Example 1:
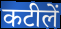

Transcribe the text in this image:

कटीलें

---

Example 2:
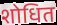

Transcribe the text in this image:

शोधित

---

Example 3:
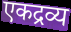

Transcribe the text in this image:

एकद्रव्य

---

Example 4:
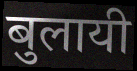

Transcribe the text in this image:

बुलायी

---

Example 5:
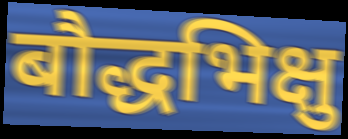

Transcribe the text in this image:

बौद्धभिक्षु